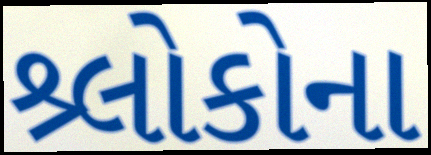
શ્ર્લોકોના